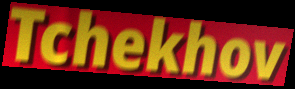
Tchekhov